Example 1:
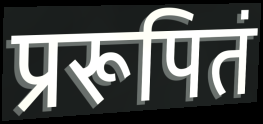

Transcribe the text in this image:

प्ररूपितं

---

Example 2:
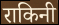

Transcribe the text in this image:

राकिनी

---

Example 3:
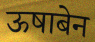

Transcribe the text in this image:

ऊषाबेन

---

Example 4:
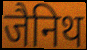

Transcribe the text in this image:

जैनिथ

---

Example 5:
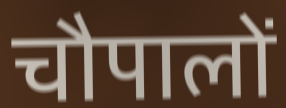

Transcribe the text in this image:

चौपालों